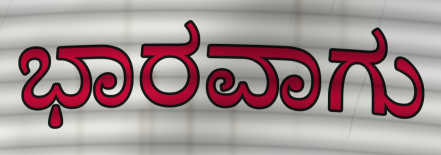
ಭಾರವಾಗು